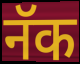
नॅक